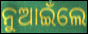
ନୁଆଇଁଲେ